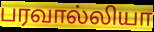
பரவால்லியா